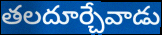
తలదూర్చేవాడు